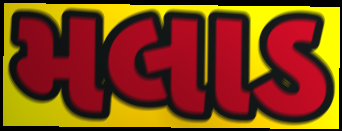
મલાડ